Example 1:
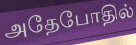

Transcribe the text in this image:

அதேபோதில்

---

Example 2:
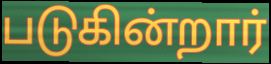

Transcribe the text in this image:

படுகின்றார்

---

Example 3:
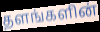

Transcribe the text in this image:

தளங்களின்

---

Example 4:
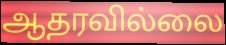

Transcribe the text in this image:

ஆதரவில்லை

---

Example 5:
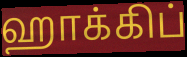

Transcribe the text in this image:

ஹாக்கிப்